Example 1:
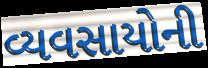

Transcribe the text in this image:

વ્યવસાયોની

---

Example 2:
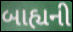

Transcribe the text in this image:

બાહ્યની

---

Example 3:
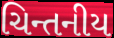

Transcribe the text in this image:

ચિન્તનીય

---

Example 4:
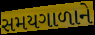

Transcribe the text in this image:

સમયગાળાને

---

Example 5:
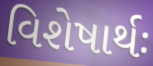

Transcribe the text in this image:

વિશેષાર્થઃ